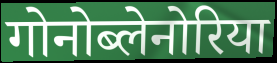
गोनोब्लेनोरिया